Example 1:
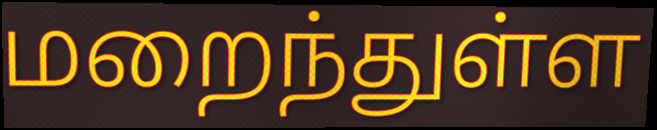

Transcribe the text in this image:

மறைந்துள்ள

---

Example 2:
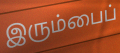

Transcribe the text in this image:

இரும்பைப்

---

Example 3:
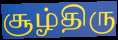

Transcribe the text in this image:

சூழ்திரு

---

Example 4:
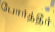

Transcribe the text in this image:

போர்த்தீர்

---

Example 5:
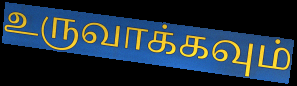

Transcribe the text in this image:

உருவாக்கவும்